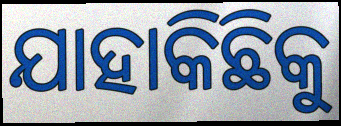
ଯାହାକିଛିକୁ